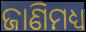
ଜାଣିମଧ୍ୟ